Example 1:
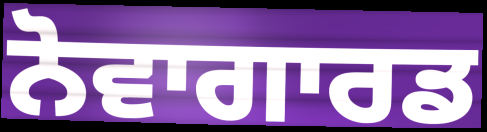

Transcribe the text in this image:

ਨੋਵਾਗਾਰਡ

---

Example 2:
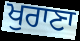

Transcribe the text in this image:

ਖੁਰਾਣਾ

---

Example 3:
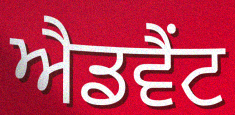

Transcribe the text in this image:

ਐਡਵੈਂਟ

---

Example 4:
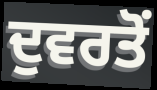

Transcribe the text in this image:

ਦੁਵਰਤੋਂ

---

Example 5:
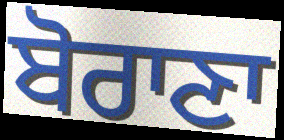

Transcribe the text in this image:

ਬੋਰਾਣਾ